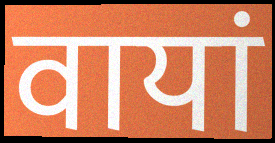
वायां